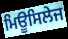
ਮਿਊਸਿਲੇਜ